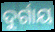
ଦୁର୍ଗାୟ